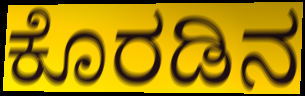
ಕೊರಡಿನ